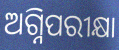
ଅଗ୍ନିପରୀକ୍ଷା